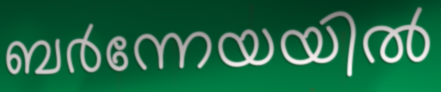
ബർന്നേയയിൽ